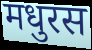
मधुरस